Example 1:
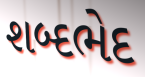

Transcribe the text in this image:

શબ્દભેદ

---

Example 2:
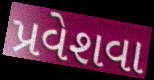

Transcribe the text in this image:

પ્રવેશવા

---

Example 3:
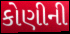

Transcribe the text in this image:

કોણીની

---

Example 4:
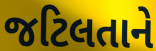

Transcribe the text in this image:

જટિલતાને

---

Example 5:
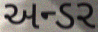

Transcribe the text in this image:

અન્ડર